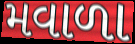
મવાળા